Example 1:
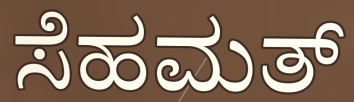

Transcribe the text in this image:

ಸೆಹಮತ್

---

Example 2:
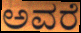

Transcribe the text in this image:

ಅವರೆ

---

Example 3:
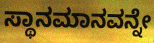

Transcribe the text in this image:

ಸ್ಥಾನಮಾನವನ್ನೇ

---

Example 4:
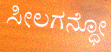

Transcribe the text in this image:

ಸೀಲಗನ್ಧೋ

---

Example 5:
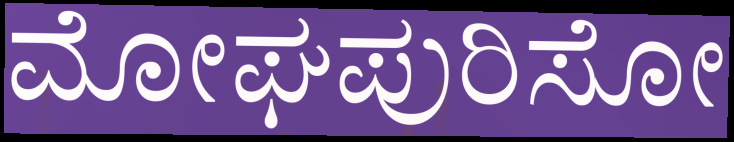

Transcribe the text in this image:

ಮೋಘಪುರಿಸೋ